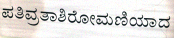
ಪತಿವ್ರತಾಶಿರೋಮಣಿಯಾದ